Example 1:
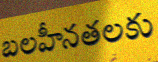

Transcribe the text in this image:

బలహీనతలకు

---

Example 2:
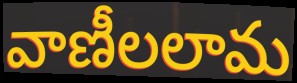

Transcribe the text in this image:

వాణీలలామ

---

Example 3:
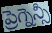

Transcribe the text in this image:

ప్రెగ్నెన్సీ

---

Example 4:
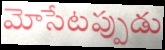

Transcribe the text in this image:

మోసేటప్పుడు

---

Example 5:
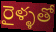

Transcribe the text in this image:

రైళ్ళతో